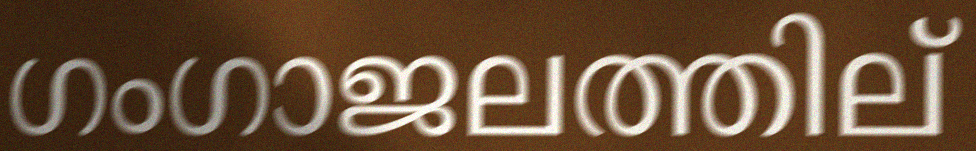
ഗംഗാജലത്തില്